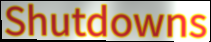
Shutdowns